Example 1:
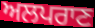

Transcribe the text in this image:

ਅਲਪਰਾਣ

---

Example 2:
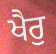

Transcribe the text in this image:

ਖੈਰੁ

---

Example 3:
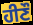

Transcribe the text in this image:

ਹੀਣੌ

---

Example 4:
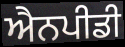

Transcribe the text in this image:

ਐਨਪੀਡੀ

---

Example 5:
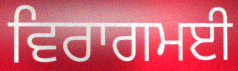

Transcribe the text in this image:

ਵਿਰਾਗਮਈ